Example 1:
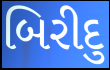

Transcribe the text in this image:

બિરીદુ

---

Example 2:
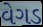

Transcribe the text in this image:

વેગડ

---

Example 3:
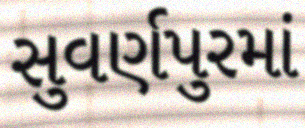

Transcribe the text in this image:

સુવર્ણપુરમાં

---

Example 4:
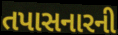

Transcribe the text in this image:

તપાસનારની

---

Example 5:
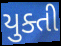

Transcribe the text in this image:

યુક્તી